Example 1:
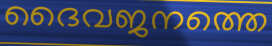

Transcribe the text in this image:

ദൈവജനത്തെ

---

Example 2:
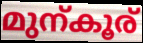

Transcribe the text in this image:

മുന്കൂര്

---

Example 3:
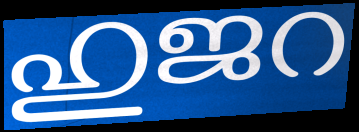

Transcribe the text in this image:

ഹുജറ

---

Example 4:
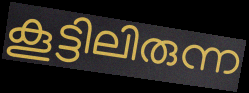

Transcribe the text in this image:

കൂട്ടിലിരുന്ന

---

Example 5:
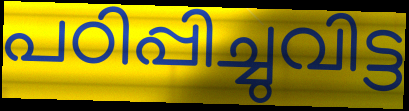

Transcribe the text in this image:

പഠിപ്പിച്ചുവിട്ട